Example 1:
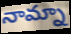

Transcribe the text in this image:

నామ్నా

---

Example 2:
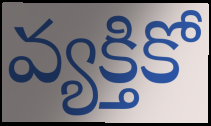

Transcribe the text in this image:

వ్యక్తికో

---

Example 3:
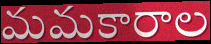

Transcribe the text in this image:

మమకారాల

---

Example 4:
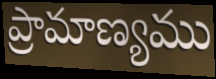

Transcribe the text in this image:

ప్రామాణ్యము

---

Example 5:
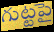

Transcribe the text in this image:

గుట్టపై